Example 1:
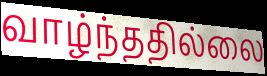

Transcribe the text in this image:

வாழ்ந்ததில்லை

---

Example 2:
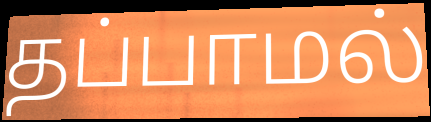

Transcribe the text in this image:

தப்பாமல்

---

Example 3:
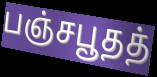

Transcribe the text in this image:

பஞ்சபூதத்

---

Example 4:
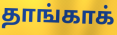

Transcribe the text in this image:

தாங்காக்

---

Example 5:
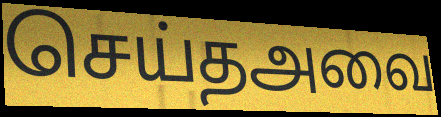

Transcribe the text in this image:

செய்தஅவை